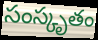
సంస్కృతం